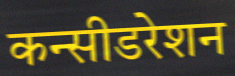
कन्सीडरेशन